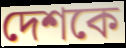
দেশকে